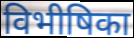
विभीषिका